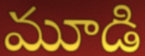
మూడి